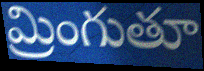
మ్రింగుతూ